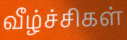
வீழ்ச்சிகள்